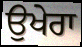
ਉਖੇਰਾ